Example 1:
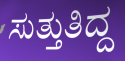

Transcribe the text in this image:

ಸುತ್ತುತಿದ್ದ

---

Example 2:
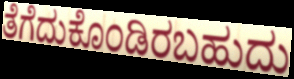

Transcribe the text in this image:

ತೆಗೆದುಕೊಂಡಿರಬಹುದು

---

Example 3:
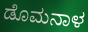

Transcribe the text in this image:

ಡೊಮನಾಳ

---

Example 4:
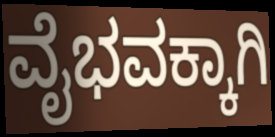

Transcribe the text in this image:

ವೈಭವಕ್ಕಾಗಿ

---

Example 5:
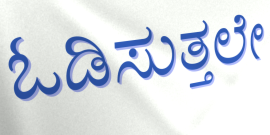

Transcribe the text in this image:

ಓಡಿಸುತ್ತಲೇ